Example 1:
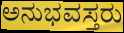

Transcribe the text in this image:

ಅನುಭವಸ್ತರು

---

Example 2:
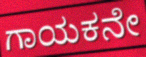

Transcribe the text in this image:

ಗಾಯಕನೇ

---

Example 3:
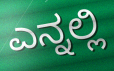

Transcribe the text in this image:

ಎನ್ನಲ್ಲಿ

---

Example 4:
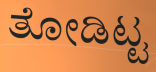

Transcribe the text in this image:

ತೋಡಿಟ್ಟ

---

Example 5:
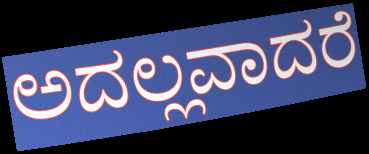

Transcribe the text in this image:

ಅದಲ್ಲವಾದರೆ